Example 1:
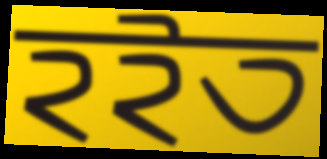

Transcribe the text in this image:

হইত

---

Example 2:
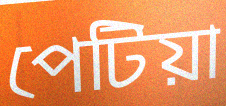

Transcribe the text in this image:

পেটিয়া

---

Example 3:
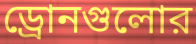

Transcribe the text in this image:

ড্রোনগুলোর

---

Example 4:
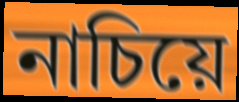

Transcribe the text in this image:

নাচিয়ে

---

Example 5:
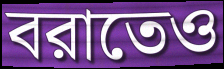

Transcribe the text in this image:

বরাতেও